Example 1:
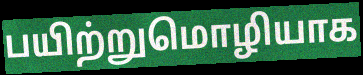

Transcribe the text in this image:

பயிற்றுமொழியாக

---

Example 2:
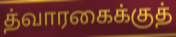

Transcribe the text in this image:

த்வாரகைக்குத்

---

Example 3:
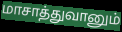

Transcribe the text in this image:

மாசாத்துவானும்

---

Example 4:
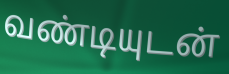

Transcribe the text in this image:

வண்டியுடன்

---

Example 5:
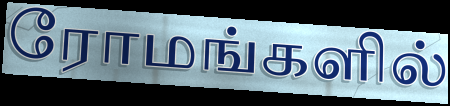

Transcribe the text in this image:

ரோமங்களில்